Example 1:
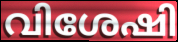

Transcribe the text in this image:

വിശേഷി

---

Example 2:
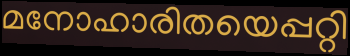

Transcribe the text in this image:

മനോഹാരിതയെപ്പറ്റി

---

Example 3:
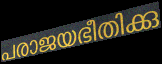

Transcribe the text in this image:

പരാജയഭീതിക്കു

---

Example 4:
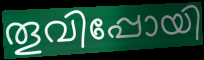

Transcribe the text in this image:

തൂവിപ്പോയി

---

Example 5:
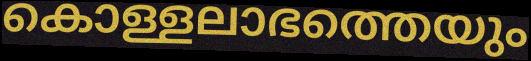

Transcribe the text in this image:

കൊള്ളലാഭത്തെയും